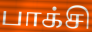
பாக்சி